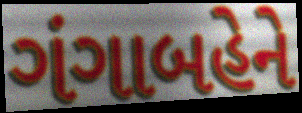
ગંગાબહેને